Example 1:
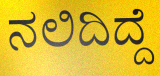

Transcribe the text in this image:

ನಲಿದಿದ್ದೆ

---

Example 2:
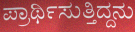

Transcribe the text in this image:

ಪ್ರಾರ್ಥಿಸುತ್ತಿದ್ದನು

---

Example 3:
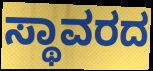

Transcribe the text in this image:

ಸ್ಥಾವರದ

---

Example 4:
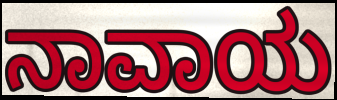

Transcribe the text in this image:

ನಾವಾಯ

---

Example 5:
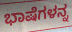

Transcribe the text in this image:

ಭಾಷೆಗಳನ್ನ